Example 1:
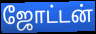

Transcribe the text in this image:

ஜோட்டன்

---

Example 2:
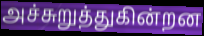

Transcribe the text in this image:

அச்சுறுத்துகின்றன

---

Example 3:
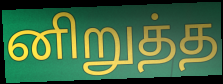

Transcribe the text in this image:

னிறுத்த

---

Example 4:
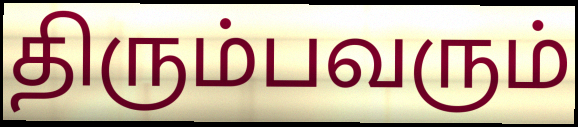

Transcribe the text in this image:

திரும்பவரும்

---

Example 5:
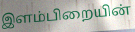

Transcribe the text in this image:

இளம்பிறையின்